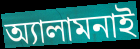
অ্যালামনাই